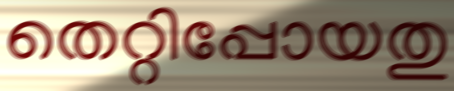
തെറ്റിപ്പോയതു